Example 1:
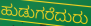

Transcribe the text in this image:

ಹುಡುಗರೆದುರು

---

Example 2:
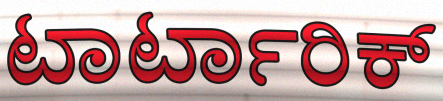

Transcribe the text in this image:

ಟಾರ್ಟಾರಿಕ್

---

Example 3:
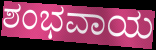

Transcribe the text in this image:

ಶಂಭವಾಯ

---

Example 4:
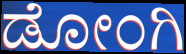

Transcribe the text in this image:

ಡೋಂಗಿ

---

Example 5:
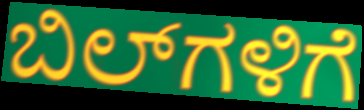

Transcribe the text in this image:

ಬಿಲ್‌ಗಳಿಗೆ